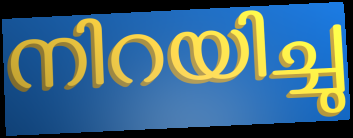
നിറയിച്ചു